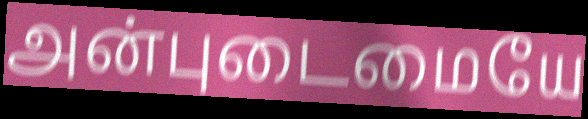
அன்புடைமையே